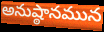
అనుష్ఠానమున